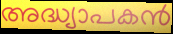
അദ്ധ്യാപകൻ